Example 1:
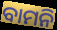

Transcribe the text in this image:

ବାମନି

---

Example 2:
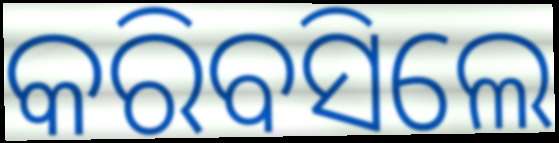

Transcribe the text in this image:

କରିବସିଲେ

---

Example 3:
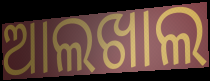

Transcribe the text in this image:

ଆଲଖାଲ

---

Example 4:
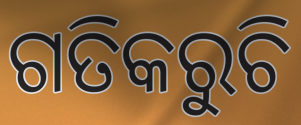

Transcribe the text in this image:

ଗତିକରୁଚି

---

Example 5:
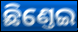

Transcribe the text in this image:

ଛିଣ୍ତେଇ